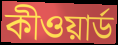
কীওয়ার্ড